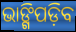
ଭାଙ୍ଗିପଡ଼ିବ